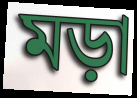
মড়া